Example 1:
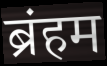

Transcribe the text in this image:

ब्रंहम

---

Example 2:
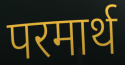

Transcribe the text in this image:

परमार्थ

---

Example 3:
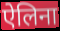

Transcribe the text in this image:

ऐलिना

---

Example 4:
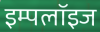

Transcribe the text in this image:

इम्पलॉइज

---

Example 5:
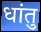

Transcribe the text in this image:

धांतु